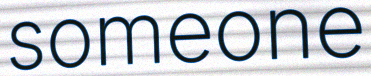
someone